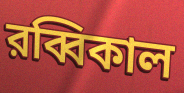
রব্বিকাল